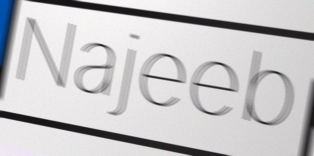
Najeeb